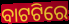
ବାଟଟିରେ